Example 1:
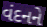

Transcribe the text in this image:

વંદનને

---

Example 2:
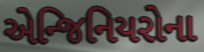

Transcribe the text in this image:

એન્જિનિયરોના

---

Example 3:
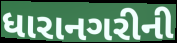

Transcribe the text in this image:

ધારાનગરીની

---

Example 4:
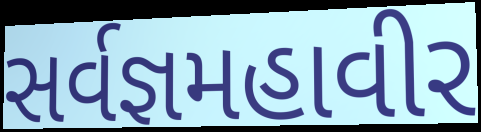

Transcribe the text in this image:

સર્વજ્ઞમહાવીર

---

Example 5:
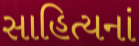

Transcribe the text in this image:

સાહિત્યનાં